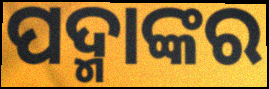
ପଦ୍ମାଙ୍କର